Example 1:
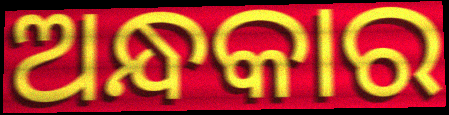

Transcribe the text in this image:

ଅନ୍ଧକାର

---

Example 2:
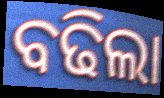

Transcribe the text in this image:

ବଢିଲା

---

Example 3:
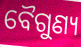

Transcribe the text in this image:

ବୈଗୁଣ୍ୟ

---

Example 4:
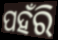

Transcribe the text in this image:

ପହଁରି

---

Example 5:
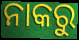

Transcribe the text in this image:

ନାକରୁ